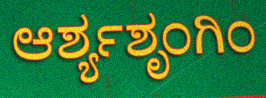
ಆರ್ಶ್ಯಶೃಂಗಿಂ